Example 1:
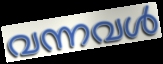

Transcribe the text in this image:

വന്നവൾ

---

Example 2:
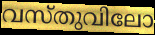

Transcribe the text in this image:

വസ്തുവിലോ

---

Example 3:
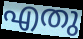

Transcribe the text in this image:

എതു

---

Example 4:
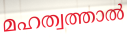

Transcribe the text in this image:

മഹത്വത്താൽ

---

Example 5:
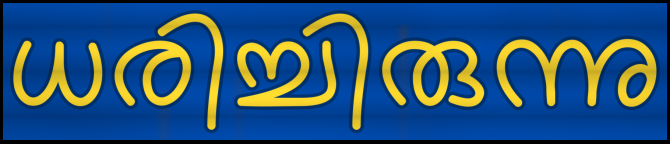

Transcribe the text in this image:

ധരിച്ചിരുന്നു